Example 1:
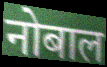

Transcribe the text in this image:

नोबाल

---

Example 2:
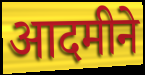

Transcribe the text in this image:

आदमीने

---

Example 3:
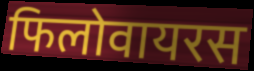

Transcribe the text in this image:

फिलोवायरस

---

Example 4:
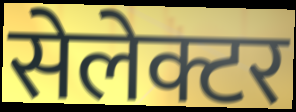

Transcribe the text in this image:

सेलेक्टर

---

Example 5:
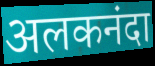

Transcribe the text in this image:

अलकनंदा